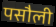
पसौली